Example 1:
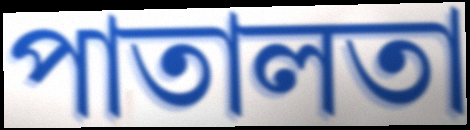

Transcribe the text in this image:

পাতালতা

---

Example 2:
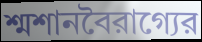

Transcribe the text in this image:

শ্মশানবৈরাগ্যের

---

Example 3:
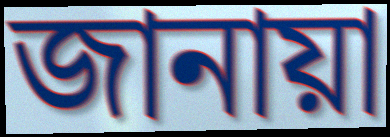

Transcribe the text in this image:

জানায়া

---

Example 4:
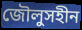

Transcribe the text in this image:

জৌলুসহীন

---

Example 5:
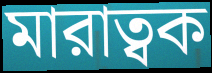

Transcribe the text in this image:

মারাত্বক